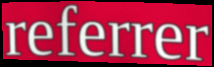
referrer